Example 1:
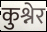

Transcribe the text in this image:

कुश्नेर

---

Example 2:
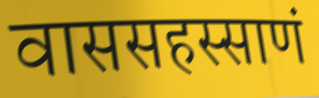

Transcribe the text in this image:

वाससहस्साणं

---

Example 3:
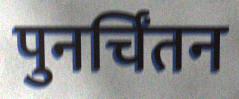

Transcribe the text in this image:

पुनर्चिंतन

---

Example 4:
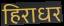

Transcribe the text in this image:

हिराधर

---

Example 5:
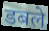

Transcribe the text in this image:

डबले